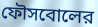
ফৌসবোলের